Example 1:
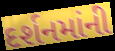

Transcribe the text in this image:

દર્શનમાંની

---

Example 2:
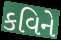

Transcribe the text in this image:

કવિને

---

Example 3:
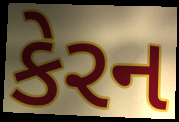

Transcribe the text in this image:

કેરન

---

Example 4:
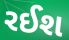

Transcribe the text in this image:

રઈશ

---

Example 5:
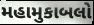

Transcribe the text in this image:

મહામુકાબલો